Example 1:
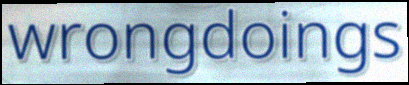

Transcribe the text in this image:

wrongdoings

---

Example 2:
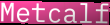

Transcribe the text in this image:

Metcalf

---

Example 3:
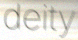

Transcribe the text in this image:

deity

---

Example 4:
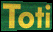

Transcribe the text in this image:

Toti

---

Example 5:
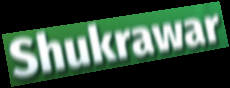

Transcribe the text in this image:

Shukrawar